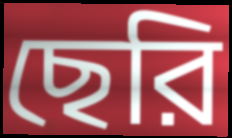
ছেরি